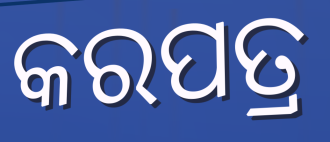
କରପତ୍ର